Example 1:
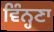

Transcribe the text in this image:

ਵਿੰਨ੍ਹਣਾ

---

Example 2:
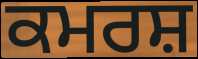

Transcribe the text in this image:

ਕਮਰਸ਼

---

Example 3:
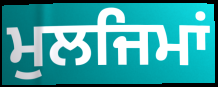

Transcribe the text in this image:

ਮੁਲਜਿਮਾਂ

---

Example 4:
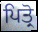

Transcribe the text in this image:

ਪਿਤ੍ਰੋ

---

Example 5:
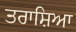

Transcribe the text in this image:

ਤਰਾਸ਼ਿਆ